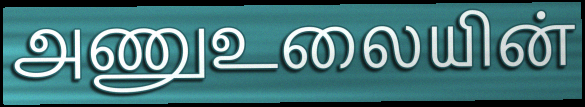
அணுஉலையின்